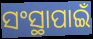
ସଂସ୍ଥାପାଇଁ